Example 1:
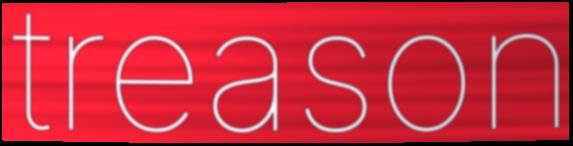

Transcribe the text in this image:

treason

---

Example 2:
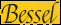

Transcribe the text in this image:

Bessel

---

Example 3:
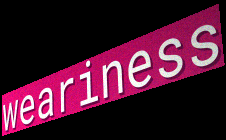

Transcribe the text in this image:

weariness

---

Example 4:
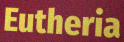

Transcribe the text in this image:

Eutheria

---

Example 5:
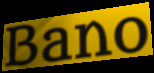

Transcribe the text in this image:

Bano